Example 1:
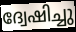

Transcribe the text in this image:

ദ്വേഷിച്ചു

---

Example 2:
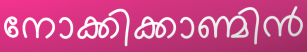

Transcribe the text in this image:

നോക്കിക്കാണ്മിൻ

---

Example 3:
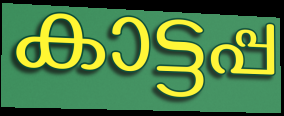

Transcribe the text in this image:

കാട്ടപ്പ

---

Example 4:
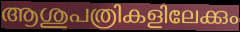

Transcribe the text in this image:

ആശുപത്രികളിലേക്കും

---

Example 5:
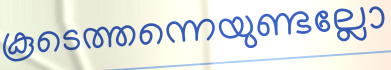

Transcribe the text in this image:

കൂടെത്തന്നെയുണ്ടല്ലോ